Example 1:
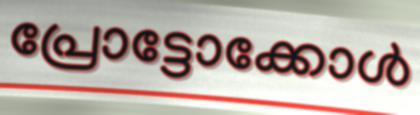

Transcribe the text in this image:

പ്രോട്ടോക്കോൾ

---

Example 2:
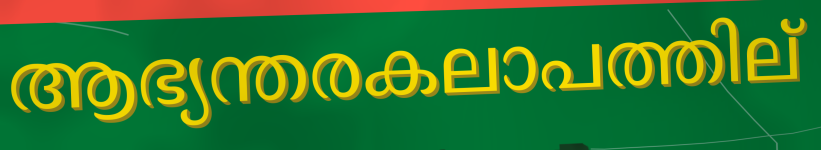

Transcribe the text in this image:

ആഭ്യന്തരകലാപത്തില്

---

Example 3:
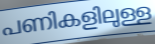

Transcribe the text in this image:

പണികളിലുള്ള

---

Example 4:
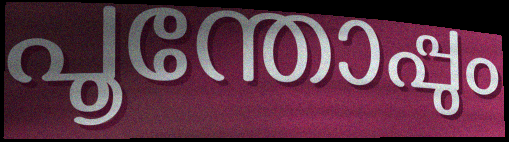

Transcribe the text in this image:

പൂന്തോപ്പും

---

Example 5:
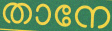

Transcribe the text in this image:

താനേ